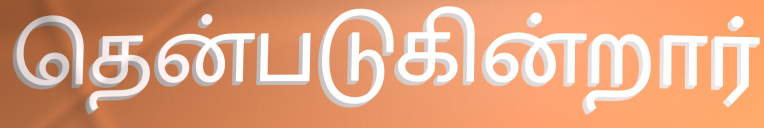
தென்படுகின்றார்